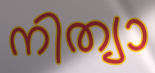
നിത്യാ